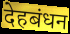
देहबंधन